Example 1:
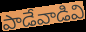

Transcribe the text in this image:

పాడేవాడివి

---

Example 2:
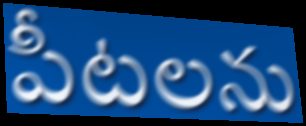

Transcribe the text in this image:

పీటలను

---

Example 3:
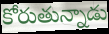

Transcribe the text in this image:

కోరుతున్నాడు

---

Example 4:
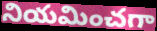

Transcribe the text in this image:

నియమించగా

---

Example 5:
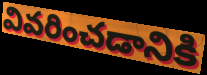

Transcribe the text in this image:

వివరించడానికి